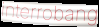
interrobang